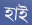
হাই